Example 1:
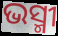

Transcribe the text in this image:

ଭସ୍ମୀ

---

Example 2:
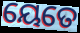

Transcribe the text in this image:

ୟେତେ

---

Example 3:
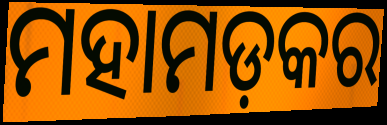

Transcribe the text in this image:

ମହାମଡ଼କର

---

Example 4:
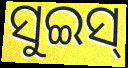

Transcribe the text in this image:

ସୁଇସ୍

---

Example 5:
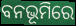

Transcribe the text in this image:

ବନଭୂମିରେ